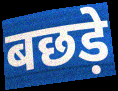
बछड़े